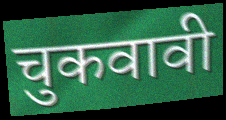
चुकवावी